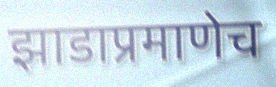
झाडाप्रमाणेच